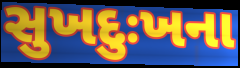
સુખદુઃખના